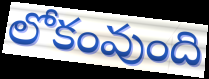
లోకంవుంది